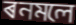
ৰনমলে